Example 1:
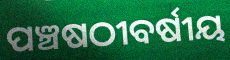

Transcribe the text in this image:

ପଞ୍ଚଷଠୀବର୍ଷୀୟ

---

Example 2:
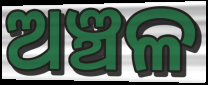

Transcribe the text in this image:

ଅଞ୍ଚଳ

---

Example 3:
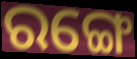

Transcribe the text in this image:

ରଙ୍ଗେ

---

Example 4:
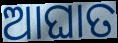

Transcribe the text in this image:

ଆଘାତ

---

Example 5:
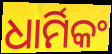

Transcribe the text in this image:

ଧାର୍ମିକଂ